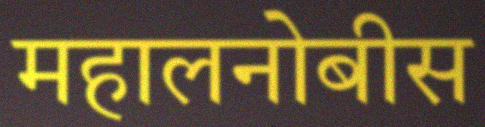
महालनोबीस